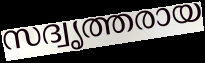
സദ്വൃത്തരായ